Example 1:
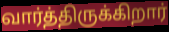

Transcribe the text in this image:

வார்த்திருக்கிறார்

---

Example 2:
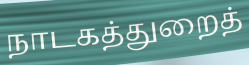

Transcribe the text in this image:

நாடகத்துறைத்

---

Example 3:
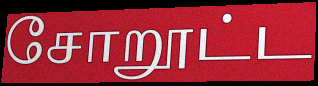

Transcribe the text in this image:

சோறூட்ட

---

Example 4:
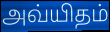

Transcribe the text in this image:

அவ்யிதம்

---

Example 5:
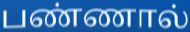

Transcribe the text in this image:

பண்ணால்